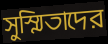
সুস্মিতাদের